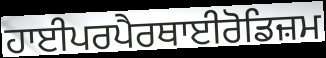
ਹਾਈਪਰਪੈਰਥਾਈਰੋਡਿਜ਼ਮ